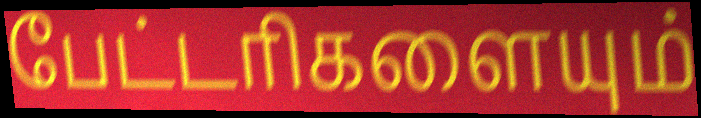
பேட்டரிகளையும்